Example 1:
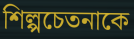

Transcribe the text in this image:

শিল্পচেতনাকে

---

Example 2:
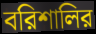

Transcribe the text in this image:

বরিশালির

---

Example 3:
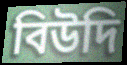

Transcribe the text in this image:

বিউদি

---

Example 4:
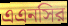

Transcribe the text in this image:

এএনসির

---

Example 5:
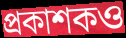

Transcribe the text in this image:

প্রকাশকও